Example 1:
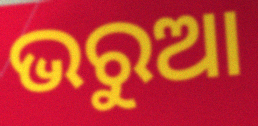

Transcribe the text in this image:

ଭରୁଆ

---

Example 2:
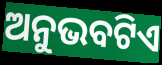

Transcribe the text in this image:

ଅନୁଭବଟିଏ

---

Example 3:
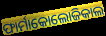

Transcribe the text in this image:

ଫାର୍ମାକୋଲୋଜିକାଲ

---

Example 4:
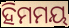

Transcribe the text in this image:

ହିମମୟ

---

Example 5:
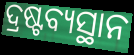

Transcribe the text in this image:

ଦ୍ରଷ୍ଟବ୍ୟସ୍ଥାନ